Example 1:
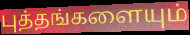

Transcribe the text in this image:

புத்தங்களையும்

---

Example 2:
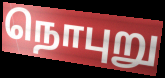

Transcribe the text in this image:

நொபுறு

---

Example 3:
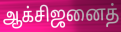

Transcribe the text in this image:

ஆக்சிஜனைத்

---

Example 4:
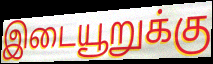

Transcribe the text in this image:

இடையூறுக்கு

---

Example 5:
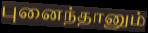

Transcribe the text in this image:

புனைந்தானும்